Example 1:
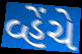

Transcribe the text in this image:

વ્હેંચે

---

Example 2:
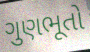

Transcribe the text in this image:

ગુણભૂતો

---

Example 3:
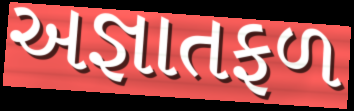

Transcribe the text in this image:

અજ્ઞાતફળ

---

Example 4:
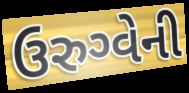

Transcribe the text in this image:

ઉરુગ્વેની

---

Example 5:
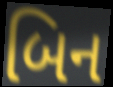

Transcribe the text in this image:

બિન